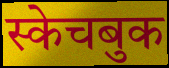
स्केचबुक